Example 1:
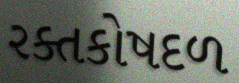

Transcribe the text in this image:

રક્તકોષદળ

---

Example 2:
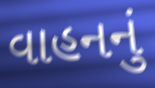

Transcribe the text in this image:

વાહનનું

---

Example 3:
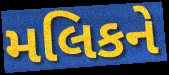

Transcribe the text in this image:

મલિકને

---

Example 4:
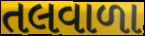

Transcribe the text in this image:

તલવાળા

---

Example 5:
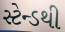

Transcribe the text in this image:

સ્ટેન્ડથી